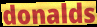
donalds